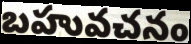
బహువచనం